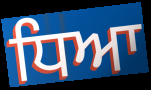
ਧਿਆ